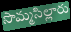
సొమ్మసిల్లారు